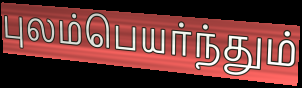
புலம்பெயர்ந்தும்